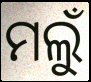
ମଲୁଁ